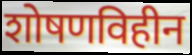
शोषणविहीन